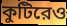
কুটিরেও